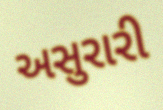
અસુરારી